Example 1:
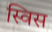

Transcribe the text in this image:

स्विस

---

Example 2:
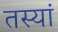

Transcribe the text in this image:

तस्यां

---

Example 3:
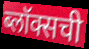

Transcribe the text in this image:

ब्लॉक्सची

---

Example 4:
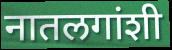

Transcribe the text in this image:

नातलगांशी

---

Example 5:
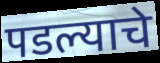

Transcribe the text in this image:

पडल्याचे